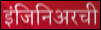
इंजिनिअरची